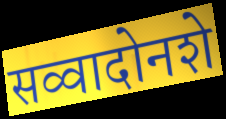
सव्वादोनशे